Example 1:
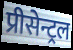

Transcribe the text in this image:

प्रीसेन्ट्रल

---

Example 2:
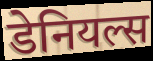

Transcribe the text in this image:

डेनियल्स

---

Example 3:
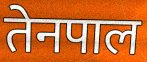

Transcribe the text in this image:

तेनपाल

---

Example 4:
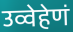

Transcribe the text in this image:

उव्वेहेणं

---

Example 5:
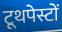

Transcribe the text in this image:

टूथपेस्टों